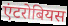
एंटरोबियस